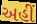
અહીં